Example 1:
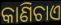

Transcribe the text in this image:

କାଣିଚାଏ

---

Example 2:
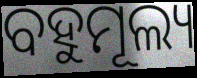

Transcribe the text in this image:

ବହୁମୂଲ୍ୟ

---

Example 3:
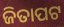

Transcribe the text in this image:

ଜିତାପଟ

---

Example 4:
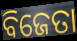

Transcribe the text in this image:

ବିଜେତା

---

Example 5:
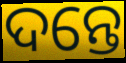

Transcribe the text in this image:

ଦନ୍ତେ